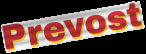
Prevost